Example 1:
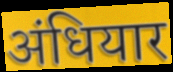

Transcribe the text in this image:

अंधियार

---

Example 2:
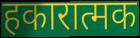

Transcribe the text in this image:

हकारात्मक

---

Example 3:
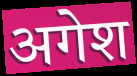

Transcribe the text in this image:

अगेश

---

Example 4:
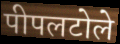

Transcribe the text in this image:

पीपलटोले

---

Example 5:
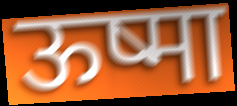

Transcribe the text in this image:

ऊष्‍मा